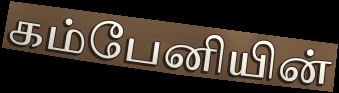
கம்பேனியின்